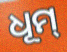
ଧୂମ୍